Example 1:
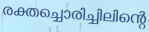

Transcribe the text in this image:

രക്തച്ചൊരിച്ചിലിന്റെ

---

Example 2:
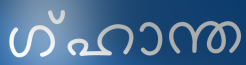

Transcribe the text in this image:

ഗ്ഹാന്ത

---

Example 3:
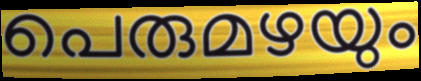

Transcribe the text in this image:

പെരുമഴയും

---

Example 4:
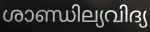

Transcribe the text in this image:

ശാണ്ഡില്യവിദ്യ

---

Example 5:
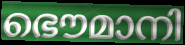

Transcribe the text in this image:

ഭൌമാനി